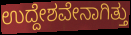
ಉದ್ದೇಶವೇನಾಗಿತ್ತು